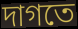
দাগতে